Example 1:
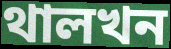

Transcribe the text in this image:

থালখন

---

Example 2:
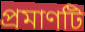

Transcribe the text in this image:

প্ৰমাণটি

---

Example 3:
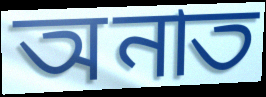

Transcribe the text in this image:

অনাত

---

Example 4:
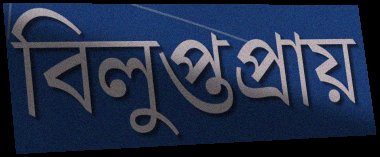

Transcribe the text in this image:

বিলুপ্তপ্ৰায়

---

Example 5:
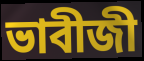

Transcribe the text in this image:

ভাবীজী